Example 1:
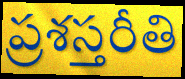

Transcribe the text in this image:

ప్రశస్తరీతి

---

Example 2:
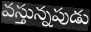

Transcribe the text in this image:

వస్తున్నపుడు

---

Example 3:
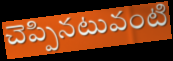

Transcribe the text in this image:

చెప్పినటువంటి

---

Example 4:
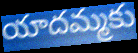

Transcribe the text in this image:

యాదమ్మకు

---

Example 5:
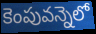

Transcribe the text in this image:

కెంపువన్నెలో